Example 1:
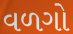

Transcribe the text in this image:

વળગો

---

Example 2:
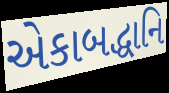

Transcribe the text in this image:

એકાબદ્ધાનિ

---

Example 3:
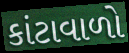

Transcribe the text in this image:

કાંટાવાળો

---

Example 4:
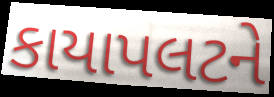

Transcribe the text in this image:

કાયાપલટને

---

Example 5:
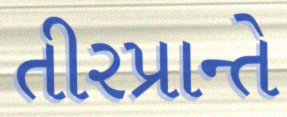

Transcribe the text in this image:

તીરપ્રાન્તે